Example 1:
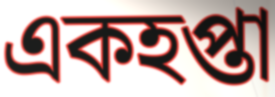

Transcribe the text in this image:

একহপ্তা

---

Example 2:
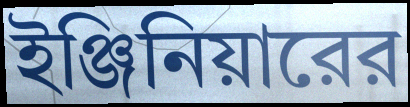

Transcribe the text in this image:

ইঞ্জিনিয়ারের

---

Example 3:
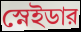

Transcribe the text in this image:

স্নেইডার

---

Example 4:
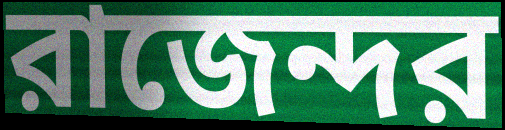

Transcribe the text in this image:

রাজেন্দর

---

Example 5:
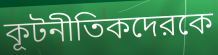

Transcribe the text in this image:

কূটনীতিকদেরকে